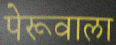
पेरूवाला